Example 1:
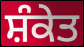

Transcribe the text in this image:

ਸ਼ੰਕੇਤ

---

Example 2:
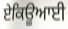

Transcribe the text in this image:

ਏਕਿਊਆਈ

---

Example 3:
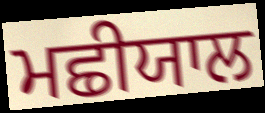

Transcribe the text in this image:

ਮਛੀਯਾਲ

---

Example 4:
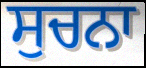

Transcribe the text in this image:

ਸੁਚਨਾ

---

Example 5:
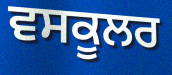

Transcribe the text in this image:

ਵਸਕੂਲਰ